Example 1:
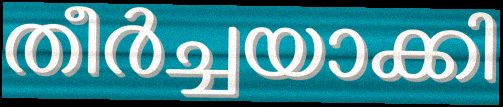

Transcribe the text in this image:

തീർച്ചയാക്കി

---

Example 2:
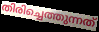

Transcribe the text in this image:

തിരിച്ചെത്തുന്നത്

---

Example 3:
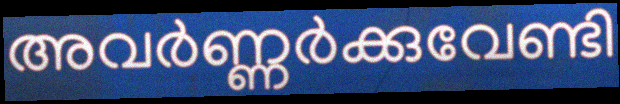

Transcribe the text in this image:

അവർണ്ണർക്കുവേണ്ടി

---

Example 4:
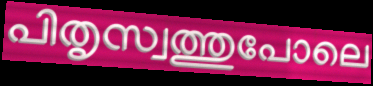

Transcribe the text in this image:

പിതൃസ്വത്തുപോലെ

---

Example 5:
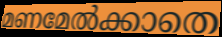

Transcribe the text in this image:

മണമേൽക്കാതെ